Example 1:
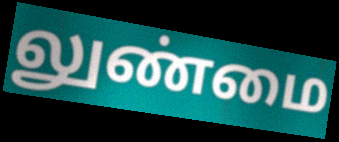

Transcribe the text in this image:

லுண்மை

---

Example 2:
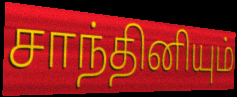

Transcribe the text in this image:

சாந்தினியும்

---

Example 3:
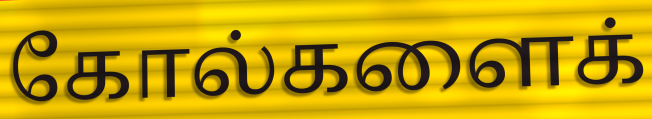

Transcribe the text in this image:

கோல்களைக்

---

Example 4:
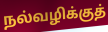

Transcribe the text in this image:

நல்வழிக்குத்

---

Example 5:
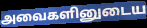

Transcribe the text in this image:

அவைகளினுடைய